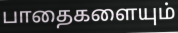
பாதைகளையும்